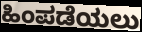
ಹಿಂಪಡೆಯಲು